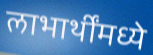
लाभार्थींमध्ये